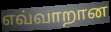
எவ்வாறான